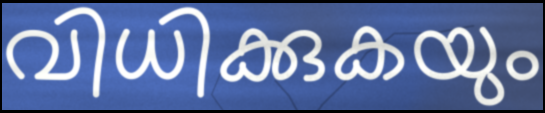
വിധിക്കുകയും